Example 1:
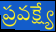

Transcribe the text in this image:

ప్రవక్ష్యే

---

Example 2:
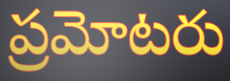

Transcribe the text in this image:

ప్రమోటరు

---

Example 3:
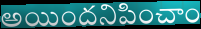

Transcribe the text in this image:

అయిందనిపించాం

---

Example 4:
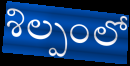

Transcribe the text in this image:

శిల్పంలో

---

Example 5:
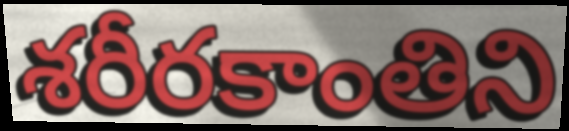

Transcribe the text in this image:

శరీరకాంతిని